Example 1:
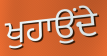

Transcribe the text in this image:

ਖੁਹਾਉਂਦੇ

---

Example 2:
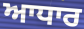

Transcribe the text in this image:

ਆਧਾਰ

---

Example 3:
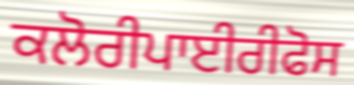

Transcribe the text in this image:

ਕਲੋਰੀਪਾਈਰੀਫੋਸ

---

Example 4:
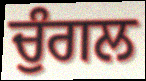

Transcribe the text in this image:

ਚੁੰਗਲ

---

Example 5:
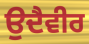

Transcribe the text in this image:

ਉਦੈਵੀਰ